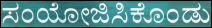
ಸಂಯೋಜಿಸಿಕೊಂಡು